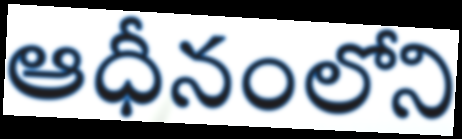
ఆధీనంలోని